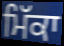
ਮਿੱਕਾ